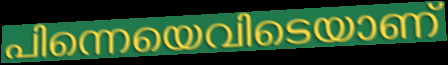
പിന്നെയെവിടെയാണ്